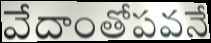
వేదాంతోపవనే